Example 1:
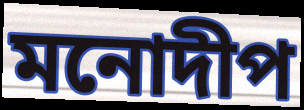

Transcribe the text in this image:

মনোদীপ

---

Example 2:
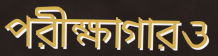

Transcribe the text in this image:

পরীক্ষাগারও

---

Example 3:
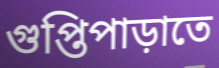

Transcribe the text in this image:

গুপ্তিপাড়াতে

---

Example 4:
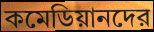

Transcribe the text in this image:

কমেডিয়ানদের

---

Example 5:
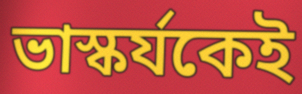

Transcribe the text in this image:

ভাস্কর্যকেই